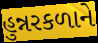
હુન્નરકળાને